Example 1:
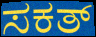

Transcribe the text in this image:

ಸಕತ್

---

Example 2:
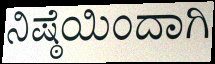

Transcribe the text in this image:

ನಿಷ್ಠೆಯಿಂದಾಗಿ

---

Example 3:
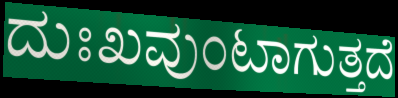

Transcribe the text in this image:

ದುಃಖವುಂಟಾಗುತ್ತದೆ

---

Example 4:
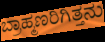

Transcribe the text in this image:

ಬ್ರಾಹ್ಮಣರಿಗಿತ್ತನು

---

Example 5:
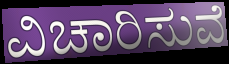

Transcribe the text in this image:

ವಿಚಾರಿಸುವೆ